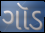
ગૉડ